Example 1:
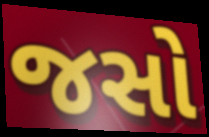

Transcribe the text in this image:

જસો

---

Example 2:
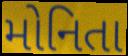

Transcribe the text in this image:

મોનિતા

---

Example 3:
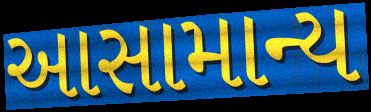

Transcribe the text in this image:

આસામાન્ય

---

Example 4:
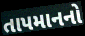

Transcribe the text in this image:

તાપમાનનો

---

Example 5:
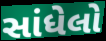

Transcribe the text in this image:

સાંધેલો